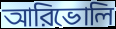
আরিভোলি